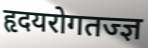
हृदयरोगतज्ज्ञ